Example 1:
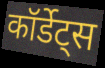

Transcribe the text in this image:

कॉर्डेट्स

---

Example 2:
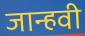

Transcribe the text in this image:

जान्‍हवी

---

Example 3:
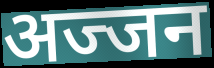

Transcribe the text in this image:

अज्जन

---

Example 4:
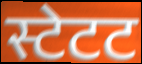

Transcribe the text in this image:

स्टेटट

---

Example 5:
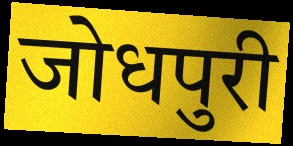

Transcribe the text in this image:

जोधपुरी